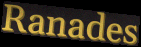
Ranades